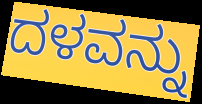
ದಳವನ್ನು